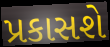
પ્રકાસશે